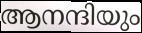
ആനന്ദിയും